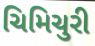
ચિમિચુરી